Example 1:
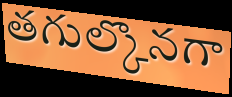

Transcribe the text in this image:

తగుల్కొనగా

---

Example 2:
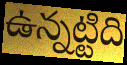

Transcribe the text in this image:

ఉన్నట్టిది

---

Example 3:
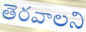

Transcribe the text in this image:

తెరవాలని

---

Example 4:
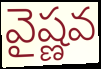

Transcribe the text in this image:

వైష్ణవ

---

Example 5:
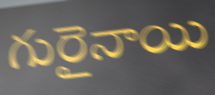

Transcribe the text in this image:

గురైనాయి